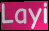
Layi